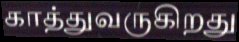
காத்துவருகிறது